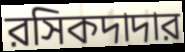
রসিকদাদার